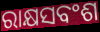
ରାକ୍ଷସବଂଶ